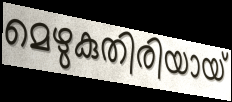
മെഴുകുതിരിയായ്